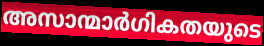
അസാന്മാർഗികതയുടെ